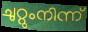
ചുറ്റുംനിന്ന്